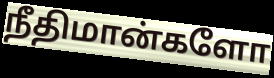
நீதிமான்களோ